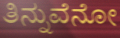
ತಿನ್ನುವೆನೋ